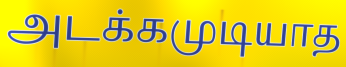
அடக்கமுடியாத